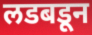
लडबडून